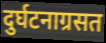
दुर्घटनाग्रसत